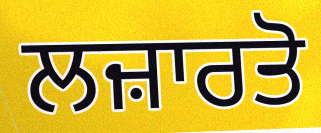
ਲਜ਼ਾਰਤੋ